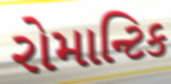
રોમાન્ટિક